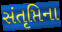
સંતૃપ્તિના